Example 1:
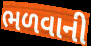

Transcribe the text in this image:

ભળવાની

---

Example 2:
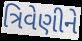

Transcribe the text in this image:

ત્રિવેણીને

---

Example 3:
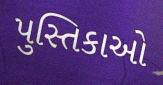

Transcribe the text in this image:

પુસ્તિકાઓ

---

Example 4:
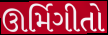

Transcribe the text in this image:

ઊર્મિગીતો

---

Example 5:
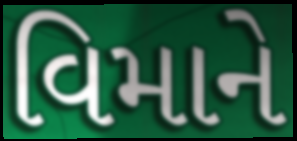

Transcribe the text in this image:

વિમાને